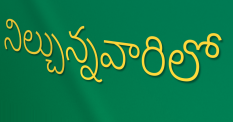
నిల్చున్నవారిలో